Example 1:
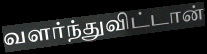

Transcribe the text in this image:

வளர்ந்துவிட்டான்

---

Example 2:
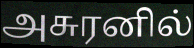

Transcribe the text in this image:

அசுரனில்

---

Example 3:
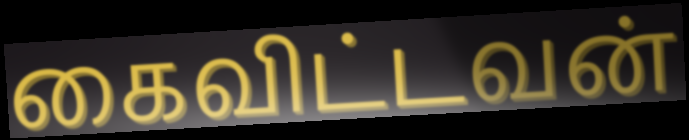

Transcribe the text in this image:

கைவிட்டவன்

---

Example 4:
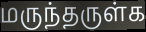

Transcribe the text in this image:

மருந்தருள்க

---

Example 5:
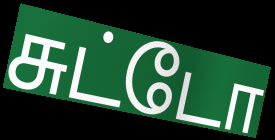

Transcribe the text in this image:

சுட்டோ